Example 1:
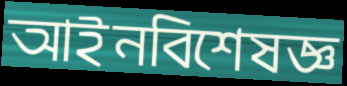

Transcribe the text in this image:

আইনবিশেষজ্ঞ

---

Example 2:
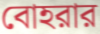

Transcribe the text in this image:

বোহরার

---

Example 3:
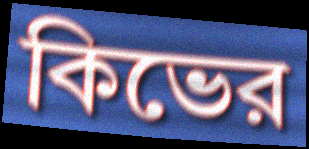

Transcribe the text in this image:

কিভের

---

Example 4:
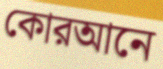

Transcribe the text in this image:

কোরআনে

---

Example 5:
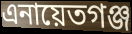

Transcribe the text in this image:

এনায়েতগঞ্জ